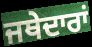
ਜਥੇਦਾਰਾਂ